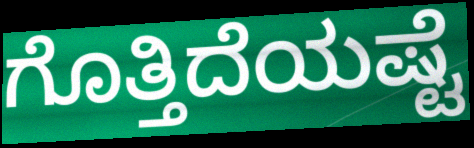
ಗೊತ್ತಿದೆಯಷ್ಟೆ